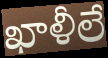
ఖాళీలే